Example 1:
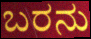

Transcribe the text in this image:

ಬರನು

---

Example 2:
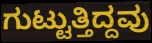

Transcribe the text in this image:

ಗುಟ್ಟುತ್ತಿದ್ದವು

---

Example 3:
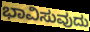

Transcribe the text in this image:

ಭಾವಿಸುವುದು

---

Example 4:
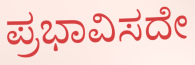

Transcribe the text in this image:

ಪ್ರಭಾವಿಸದೇ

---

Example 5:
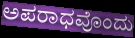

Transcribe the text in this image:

ಅಪರಾಧವೊಂದು